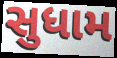
સુધામ